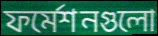
ফর্মেশনগুলো